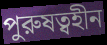
পুরুষত্বহীন